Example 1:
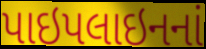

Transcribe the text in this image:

પાઇપલાઇનનાં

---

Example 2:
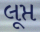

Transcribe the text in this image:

લૂપ્ત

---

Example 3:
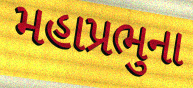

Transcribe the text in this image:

મહાપ્રભુના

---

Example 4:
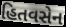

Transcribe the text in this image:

હિતવસેન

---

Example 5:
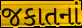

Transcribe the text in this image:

જકાતનાં